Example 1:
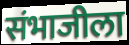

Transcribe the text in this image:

संभाजीला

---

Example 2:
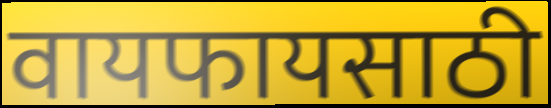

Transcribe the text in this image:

वायफायसाठी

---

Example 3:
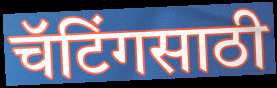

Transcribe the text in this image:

चॅटिंगसाठी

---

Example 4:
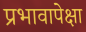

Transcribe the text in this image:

प्रभावापेक्षा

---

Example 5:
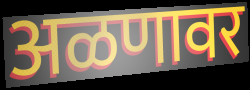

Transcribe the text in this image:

अळणावर